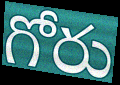
గోరు